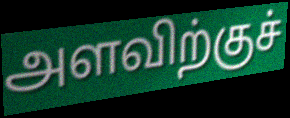
அளவிற்குச்